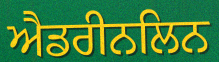
ਐਡਰੀਨਲਿਨ